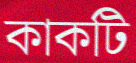
কাকটি